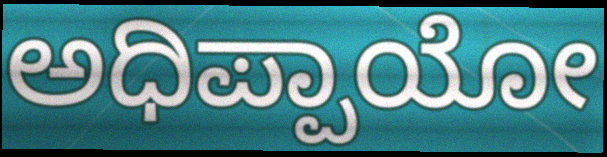
ಅಧಿಪ್ಪಾಯೋ